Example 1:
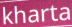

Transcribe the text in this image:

kharta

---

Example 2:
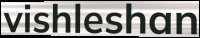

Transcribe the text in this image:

vishleshan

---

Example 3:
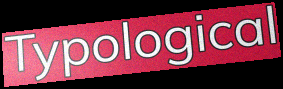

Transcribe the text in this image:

Typological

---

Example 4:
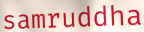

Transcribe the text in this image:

samruddha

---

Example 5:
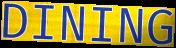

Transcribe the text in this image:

DINING